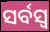
ସର୍ବସ୍ୱ